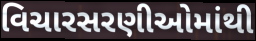
વિચારસરણીઓમાંથી